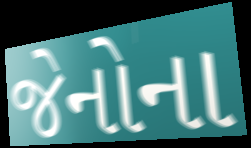
જેનોના